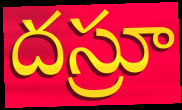
దస్రూ